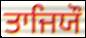
ਤਾਜਿਯੌ